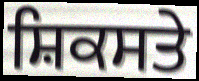
ਸ਼ਿਕਸਤੇ